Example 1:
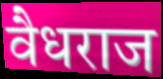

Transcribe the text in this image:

वैधराज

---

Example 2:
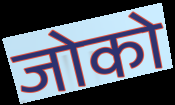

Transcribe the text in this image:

जोको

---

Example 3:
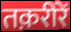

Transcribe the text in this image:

तक़रीरें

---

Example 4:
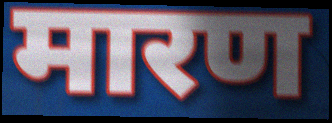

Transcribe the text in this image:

मारण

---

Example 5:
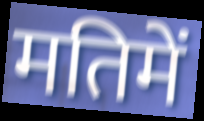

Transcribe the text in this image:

मतिमें